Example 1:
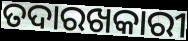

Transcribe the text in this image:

ତଦାରଖକାରୀ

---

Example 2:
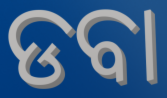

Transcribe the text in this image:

ଡବା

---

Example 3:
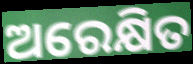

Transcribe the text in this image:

ଅରେକ୍ଷିତ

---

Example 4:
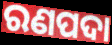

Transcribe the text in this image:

ରଣପଦା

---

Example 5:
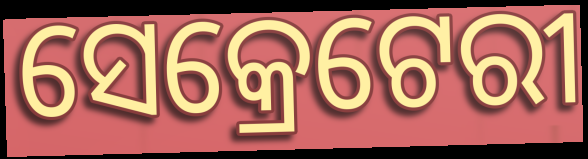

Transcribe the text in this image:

ସେକ୍ରେଟେରୀ